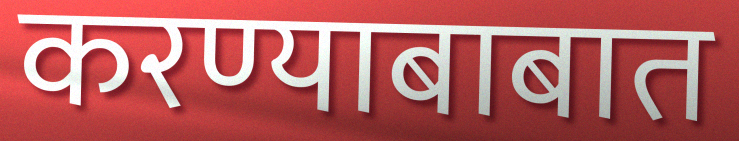
करण्याबाबात